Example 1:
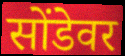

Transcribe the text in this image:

सोंडेवर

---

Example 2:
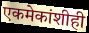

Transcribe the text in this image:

एकमेकांशीही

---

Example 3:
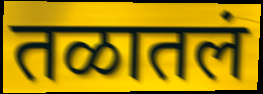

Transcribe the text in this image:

तळातलं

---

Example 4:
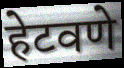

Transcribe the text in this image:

हेटवणे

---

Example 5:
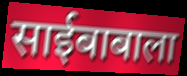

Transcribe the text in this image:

साईबाबाला